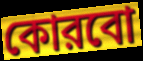
কোরবো